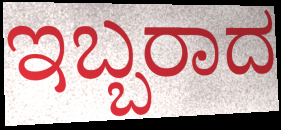
ಇಬ್ಬರಾದ